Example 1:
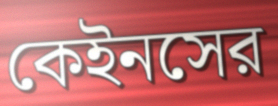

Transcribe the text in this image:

কেইনসের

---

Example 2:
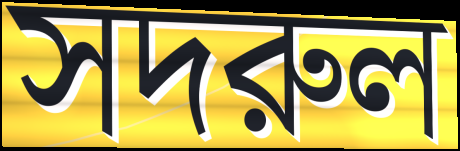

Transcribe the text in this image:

সদরুল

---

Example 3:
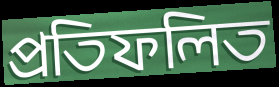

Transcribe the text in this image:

প্রতিফলিত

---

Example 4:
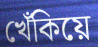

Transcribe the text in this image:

খেঁকিয়ে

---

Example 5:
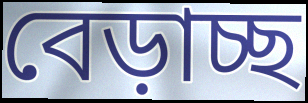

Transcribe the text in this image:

বেড়াচ্ছ